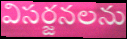
విసర్జనలను